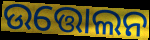
ଉତ୍ତୋଲନ